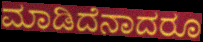
ಮಾಡಿದೆನಾದರೂ